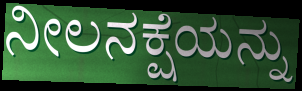
ನೀಲನಕ್ಷೆಯನ್ನು